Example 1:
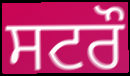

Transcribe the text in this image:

ਸਟਰੌ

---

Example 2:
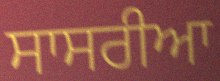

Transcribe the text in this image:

ਸਾਸਰੀਆ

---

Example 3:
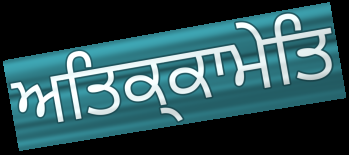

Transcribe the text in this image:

ਅਤਿਕ੍ਕਾਮੇਤਿ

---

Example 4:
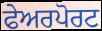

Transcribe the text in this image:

ਫੇਅਰਪੋਰਟ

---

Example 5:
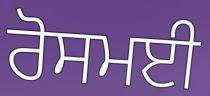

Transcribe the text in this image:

ਰੋਸਮਈ